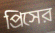
প্রিসের